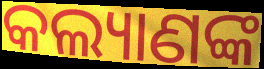
କଲ୍ୟାଣଙ୍କ